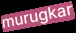
murugkar